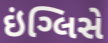
ઇંગ્લિસે